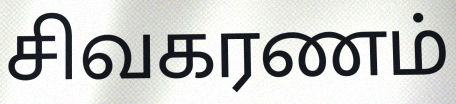
சிவகரணம்